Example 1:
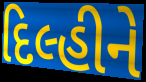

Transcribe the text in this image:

દિલ્હીને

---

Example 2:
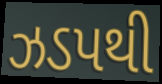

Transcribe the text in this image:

ઝડપથી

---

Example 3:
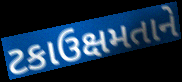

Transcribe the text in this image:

ટકાઉક્ષમતાને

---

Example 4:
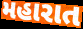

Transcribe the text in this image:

મહારાત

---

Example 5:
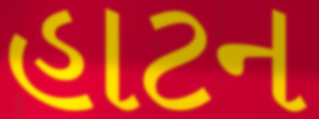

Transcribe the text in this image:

હાટન